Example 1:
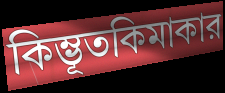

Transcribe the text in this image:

কিম্ভূতকিমাকার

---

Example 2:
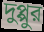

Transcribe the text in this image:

দুপ্পুর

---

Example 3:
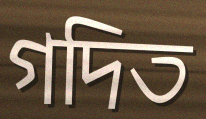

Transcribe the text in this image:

গদিত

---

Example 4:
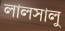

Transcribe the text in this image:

লালসালু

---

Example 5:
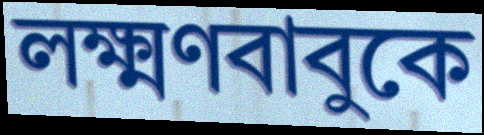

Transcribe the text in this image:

লক্ষ্মণবাবুকে